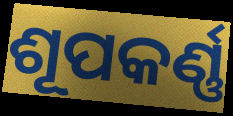
ଶୂପକର୍ଣ୍ଣ